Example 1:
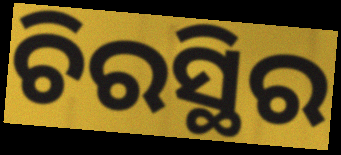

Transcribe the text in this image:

ଚିରସ୍ଥିର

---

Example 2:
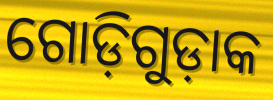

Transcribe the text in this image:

ଗୋଡ଼ିଗୁଡ଼ାକ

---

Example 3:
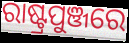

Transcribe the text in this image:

ରାଷ୍ଟ୍ରପୁଞ୍ଜରେ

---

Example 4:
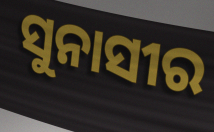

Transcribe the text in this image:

ସୁନାସୀର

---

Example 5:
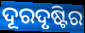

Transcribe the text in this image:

ଦୂରଦୃଷ୍ଟିର